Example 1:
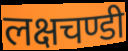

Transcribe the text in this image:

लक्षचण्डी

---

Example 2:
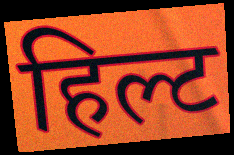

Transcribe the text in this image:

हिल्ट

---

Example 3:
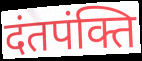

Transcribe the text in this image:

दंतपंक्ति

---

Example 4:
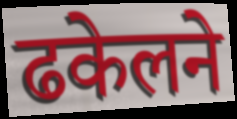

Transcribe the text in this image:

ढकेलने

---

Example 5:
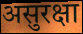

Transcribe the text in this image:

असुरक्षा